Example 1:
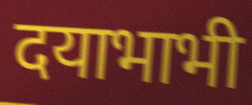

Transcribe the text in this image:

दयाभाभी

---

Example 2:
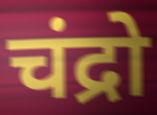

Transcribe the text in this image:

चंद्रो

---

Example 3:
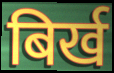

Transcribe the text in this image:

बिर्ख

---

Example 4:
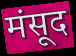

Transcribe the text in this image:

मंसूद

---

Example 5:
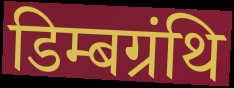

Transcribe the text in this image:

डिम्बग्रंथि